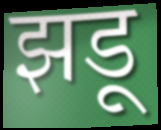
झडू